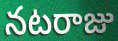
నటరాజు